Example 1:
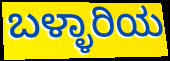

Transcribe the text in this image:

ಬಳ್ಳಾರಿಯ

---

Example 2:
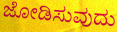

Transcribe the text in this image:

ಜೋಡಿಸುವುದು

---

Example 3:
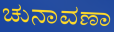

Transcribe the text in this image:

ಚುನಾವಣಾ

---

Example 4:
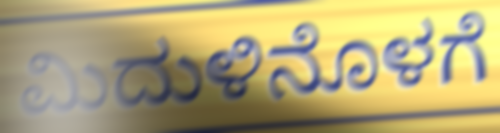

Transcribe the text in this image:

ಮಿದುಳಿನೊಳಗೆ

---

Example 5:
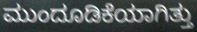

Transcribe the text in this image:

ಮುಂದೂಡಿಕೆಯಾಗಿತ್ತು